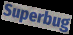
Superbug